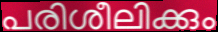
പരിശീലിക്കും